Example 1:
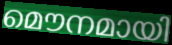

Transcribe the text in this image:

മൌനമായി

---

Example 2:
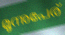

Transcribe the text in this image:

മൂന്നുപേര്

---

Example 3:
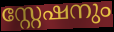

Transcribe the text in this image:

സ്റ്റേഷനും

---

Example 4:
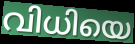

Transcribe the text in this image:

വിധിയെ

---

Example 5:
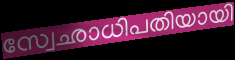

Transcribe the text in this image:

സ്വേഛാധിപതിയായി